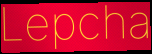
Lepcha